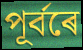
পূৰ্বৰে